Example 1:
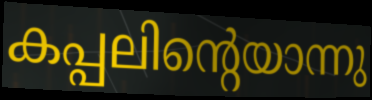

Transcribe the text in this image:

കപ്പലിന്റെയാന്നു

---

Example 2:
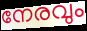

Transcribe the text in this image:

നേരവും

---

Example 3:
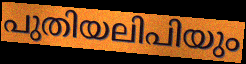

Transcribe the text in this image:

പുതിയലിപിയും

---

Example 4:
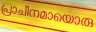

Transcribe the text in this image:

പ്രാചീനമായൊരു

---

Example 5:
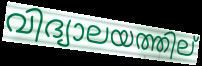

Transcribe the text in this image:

വിദ്യാലയത്തില്